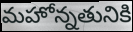
మహోన్నతునికి